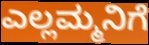
ಎಲ್ಲಮ್ಮನಿಗೆ